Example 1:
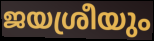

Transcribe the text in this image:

ജയശ്രീയും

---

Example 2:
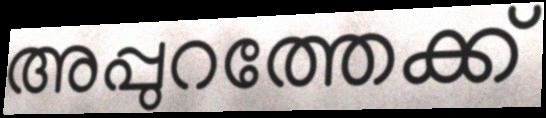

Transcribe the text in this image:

അപ്പുറത്തേക്ക്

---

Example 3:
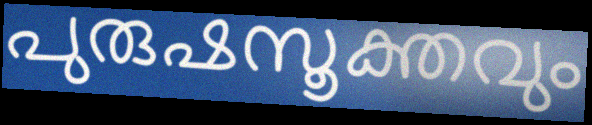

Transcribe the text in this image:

പുരുഷസൂക്തവും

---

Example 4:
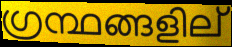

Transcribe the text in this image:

ഗ്രന്ഥങ്ങളില്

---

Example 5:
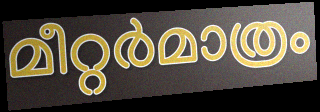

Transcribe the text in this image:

മീറ്റർമാത്രം